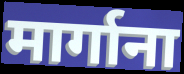
मार्गाना